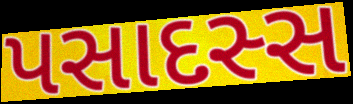
પસાદસ્સ